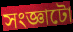
সংজ্ঞাটো